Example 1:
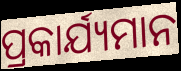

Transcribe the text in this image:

ପ୍ରକାର୍ଯ୍ୟମାନ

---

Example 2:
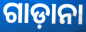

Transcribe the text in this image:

ଗାଡ଼ାନା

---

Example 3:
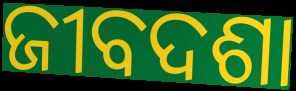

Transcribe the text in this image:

ଜୀବଦଶା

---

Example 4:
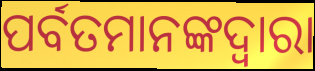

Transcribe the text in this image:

ପର୍ବତମାନଙ୍କଦ୍ଵାରା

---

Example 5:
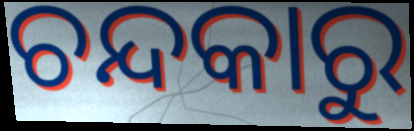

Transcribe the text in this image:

ଚନ୍ଦକାରୁ